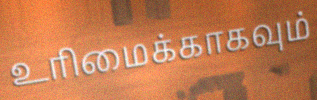
உரிமைக்காகவும்